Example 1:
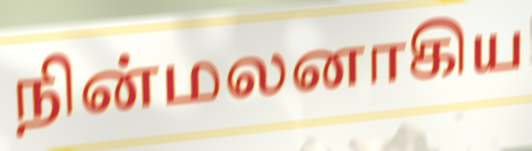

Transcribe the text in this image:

நின்மலனாகிய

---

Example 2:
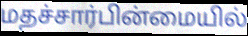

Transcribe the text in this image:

மதச்சார்பின்மையில்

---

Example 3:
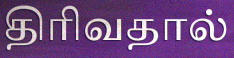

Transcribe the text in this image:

திரிவதால்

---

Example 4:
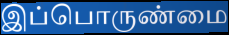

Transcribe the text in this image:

இப்பொருண்மை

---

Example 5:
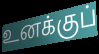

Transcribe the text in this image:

உனக்குப்